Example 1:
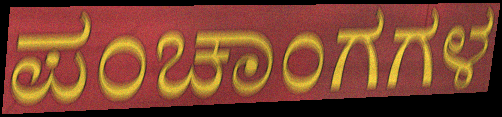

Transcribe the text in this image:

ಪಂಚಾಂಗಗಳ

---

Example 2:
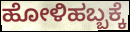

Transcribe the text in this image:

ಹೋಳಿಹಬ್ಬಕ್ಕೆ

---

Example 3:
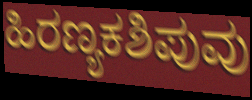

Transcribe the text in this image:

ಹಿರಣ್ಯಕಶಿಪುವು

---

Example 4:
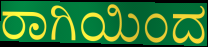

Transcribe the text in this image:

ರಾಗಿಯಿಂದ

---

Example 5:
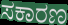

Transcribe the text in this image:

ಸಕಾರಣ